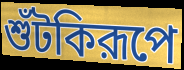
শুঁটকিরূপে